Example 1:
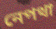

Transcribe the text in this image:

নেপথা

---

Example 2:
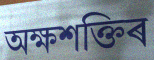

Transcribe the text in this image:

অক্ষশক্তিৰ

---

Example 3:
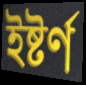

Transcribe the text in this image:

ইষ্টৰ্ণ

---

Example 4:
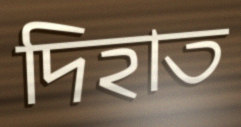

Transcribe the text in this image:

দিহাত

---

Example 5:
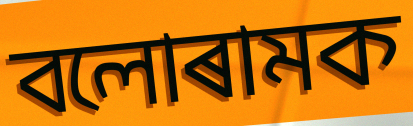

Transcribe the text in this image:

বলোৰামক